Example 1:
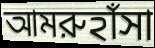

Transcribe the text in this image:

আমরুহাঁসা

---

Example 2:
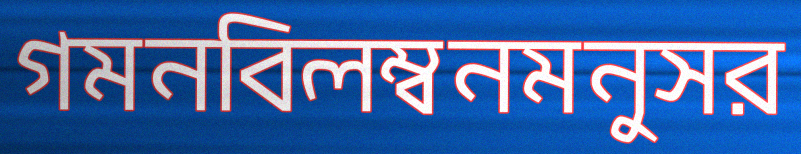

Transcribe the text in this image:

গমনবিলম্বনমনুসর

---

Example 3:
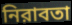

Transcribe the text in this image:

নিরাবতা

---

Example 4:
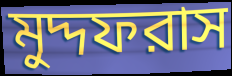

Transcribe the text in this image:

মুদ্দফরাস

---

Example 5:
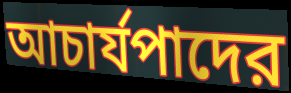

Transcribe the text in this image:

আচার্যপাদের